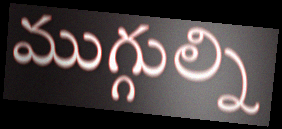
ముగ్గుల్ని